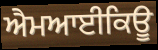
ਐਮਆਈਕਿਊ